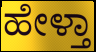
ಹೇಳ್ತಾ